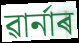
ৱাৰ্নাৰ